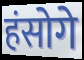
हंसोगे